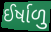
ઈર્ષાળુ